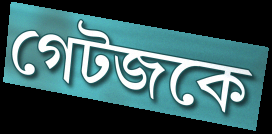
গেটজকে